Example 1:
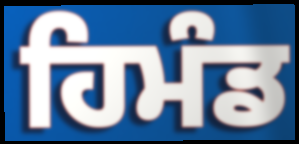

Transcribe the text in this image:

ਹਿਮੰਡ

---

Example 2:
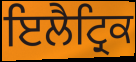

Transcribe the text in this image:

ਇਲੈਟ੍ਰਿਕ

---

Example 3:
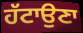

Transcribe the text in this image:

ਹੱਟਾਉਣਾ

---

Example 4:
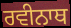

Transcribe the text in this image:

ਰਵੀਨਾਥ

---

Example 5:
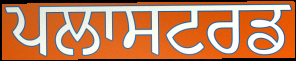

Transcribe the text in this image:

ਪਲਾਸਟਰਡ